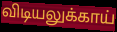
விடியலுக்காய்